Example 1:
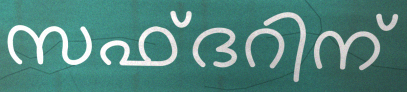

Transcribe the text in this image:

സഫ്ദറിന്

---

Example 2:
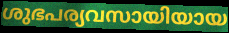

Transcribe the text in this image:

ശുഭപര്യവസായിയായ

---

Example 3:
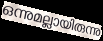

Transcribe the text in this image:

ഒന്നുമല്ലായിരുന്നു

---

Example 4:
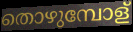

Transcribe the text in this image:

തൊഴുമ്പോള്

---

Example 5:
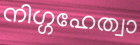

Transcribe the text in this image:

നിഗ്ഗഹേത്വാ